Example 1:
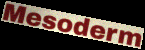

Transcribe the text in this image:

Mesoderm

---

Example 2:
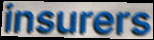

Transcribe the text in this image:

insurers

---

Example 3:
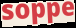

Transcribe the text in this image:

soppe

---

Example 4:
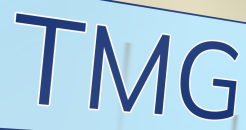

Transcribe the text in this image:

TMG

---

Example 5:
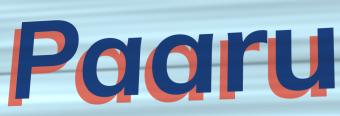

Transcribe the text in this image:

Paaru